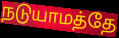
நடுயாமத்தே